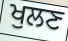
ਖੁਲਣ